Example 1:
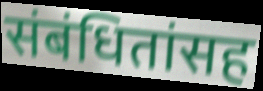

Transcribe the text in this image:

संबंधितांसह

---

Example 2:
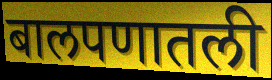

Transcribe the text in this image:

बालपणातली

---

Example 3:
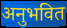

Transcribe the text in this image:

अनुभवित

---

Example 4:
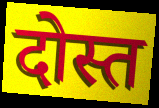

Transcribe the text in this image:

दोस्त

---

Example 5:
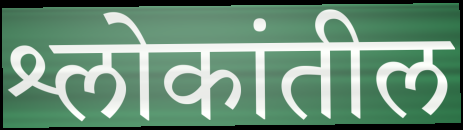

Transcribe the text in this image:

श्लोकांतील